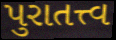
પુરાતત્ત્વ